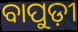
ବାପୁଡ଼ୀ